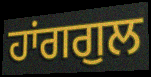
ਹਾਂਗਗੁਲ